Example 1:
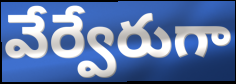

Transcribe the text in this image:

వేర్వేరుగా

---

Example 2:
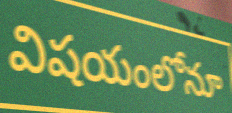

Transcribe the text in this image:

విషయంలోనూ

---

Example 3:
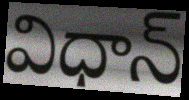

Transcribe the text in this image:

విధాన్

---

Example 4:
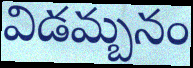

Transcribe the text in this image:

విడమ్బనం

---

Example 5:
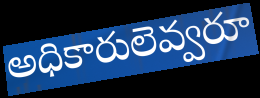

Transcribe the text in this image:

అధికారులెవ్వరూ